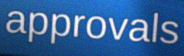
approvals